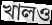
খালও